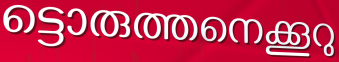
ട്ടൊരുത്തനെക്കൂറു